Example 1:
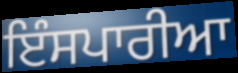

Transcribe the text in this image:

ਇੰਸਪਾਰੀਆ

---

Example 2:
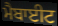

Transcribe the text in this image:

ਮੈਬਾਈਟ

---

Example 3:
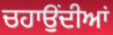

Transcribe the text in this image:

ਚਹਾਉਂਦੀਆਂ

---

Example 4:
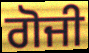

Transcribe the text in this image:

ਗੋਜੀ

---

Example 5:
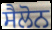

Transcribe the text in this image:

ਸੈਲੋਨ